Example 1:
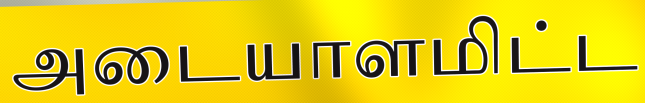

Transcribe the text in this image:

அடையாளமிட்ட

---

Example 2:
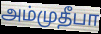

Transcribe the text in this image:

அம்முதீபா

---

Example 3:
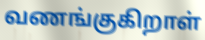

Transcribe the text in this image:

வணங்குகிறாள்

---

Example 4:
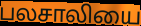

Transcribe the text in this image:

பலசாலியை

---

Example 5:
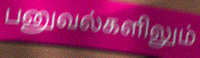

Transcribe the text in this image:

பனுவல்களிலும்